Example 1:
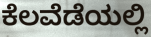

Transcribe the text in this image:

ಕೆಲವೆಡೆಯಲ್ಲಿ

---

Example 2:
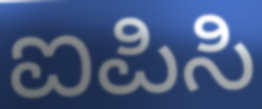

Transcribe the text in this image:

ಐಪಿಸಿ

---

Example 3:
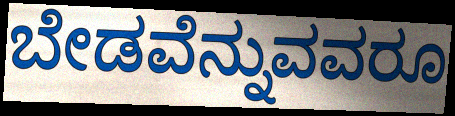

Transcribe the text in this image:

ಬೇಡವೆನ್ನುವವರೂ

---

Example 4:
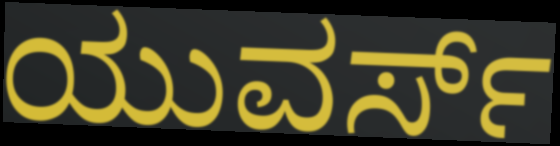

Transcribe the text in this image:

ಯುವರ್ಸ್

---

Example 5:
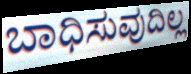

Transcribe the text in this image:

ಬಾಧಿಸುವುದಿಲ್ಲ